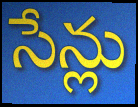
సేన్లు